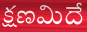
క్షణమిదే